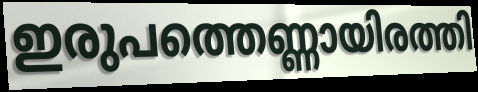
ഇരുപത്തെണ്ണായിരത്തി